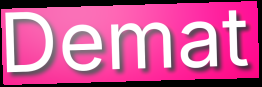
Demat